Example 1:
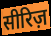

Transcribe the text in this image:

सीरिज़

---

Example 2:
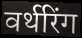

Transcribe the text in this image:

वर्थरिंग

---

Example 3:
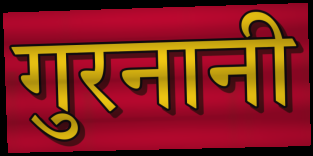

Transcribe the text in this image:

गुरनानी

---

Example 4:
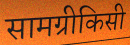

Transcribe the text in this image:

सामग्रीकिसी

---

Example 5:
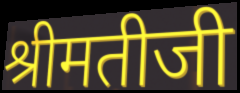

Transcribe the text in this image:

श्रीमतीजी